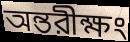
অন্তরীক্ষং